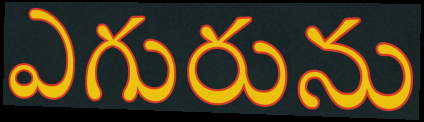
ఎగురును